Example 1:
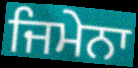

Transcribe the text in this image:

ਜਿਮੇਨਾ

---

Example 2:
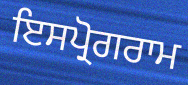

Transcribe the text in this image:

ਇਸਪ੍ਰੋਗਰਾਮ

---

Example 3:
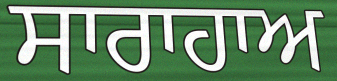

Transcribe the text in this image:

ਸਾਰਾਹਾਅ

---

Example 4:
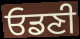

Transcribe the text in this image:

ਓਡਣੀ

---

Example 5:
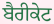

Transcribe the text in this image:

ਬੈਰੀਕੇਟ